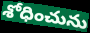
శోధించును